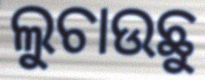
ଲୁଚାଉଛୁ